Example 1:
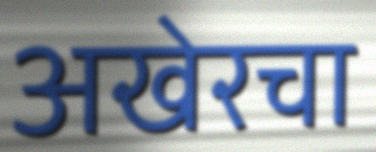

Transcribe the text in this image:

अखेरचा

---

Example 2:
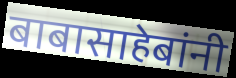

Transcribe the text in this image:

बाबासाहेबांनी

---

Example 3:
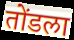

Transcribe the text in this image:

तोंडला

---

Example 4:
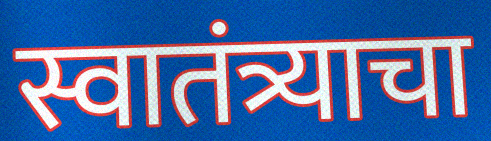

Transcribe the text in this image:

स्वातंत्र्याचा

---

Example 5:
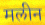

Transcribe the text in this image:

मलीन